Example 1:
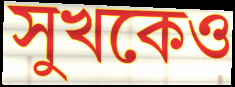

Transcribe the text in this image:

সুখকেও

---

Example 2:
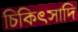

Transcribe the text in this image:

চিকিৎসাদি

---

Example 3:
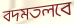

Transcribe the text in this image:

বদমতলবে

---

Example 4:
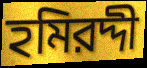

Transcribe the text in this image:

হমিরদ্দী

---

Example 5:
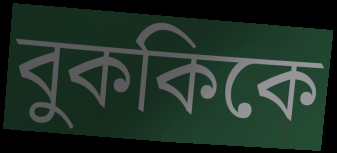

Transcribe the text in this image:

বুককিকে